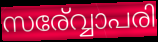
സര്വ്വോപരി